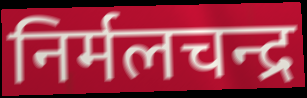
निर्मलचन्द्र